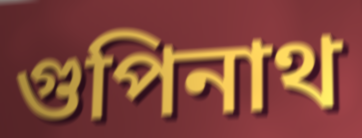
গুপিনাথ